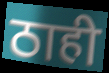
ठाही